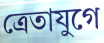
ত্রেতাযুগে